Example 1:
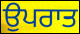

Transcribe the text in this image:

ਉਪਰਾਤ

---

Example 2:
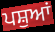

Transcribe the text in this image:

ਪਸ਼ੁਆਂ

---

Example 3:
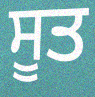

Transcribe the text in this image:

ਸੂਤ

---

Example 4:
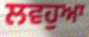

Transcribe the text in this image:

ਲਵਹੁਆ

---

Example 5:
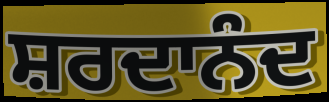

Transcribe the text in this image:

ਸ਼ਰਦਾਨੰਦ